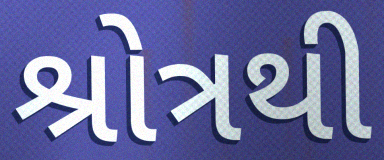
શ્રોત્રથી